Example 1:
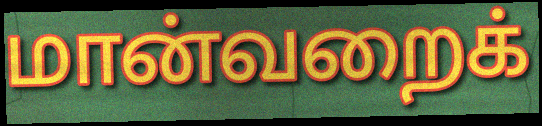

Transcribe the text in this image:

மான்வறைக்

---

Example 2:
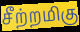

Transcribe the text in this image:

சீற்றமிகு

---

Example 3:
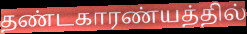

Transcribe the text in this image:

தண்டகாரண்யத்தில்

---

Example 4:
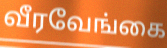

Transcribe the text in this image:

வீரவேங்கை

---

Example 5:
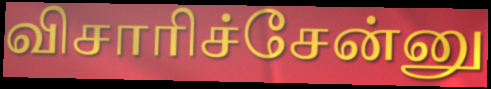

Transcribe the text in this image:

விசாரிச்சேன்னு